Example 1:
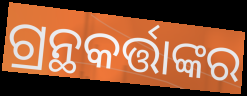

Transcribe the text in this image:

ଗ୍ରନ୍ଥକର୍ତ୍ତାଙ୍କର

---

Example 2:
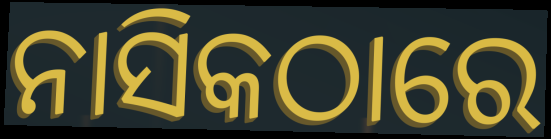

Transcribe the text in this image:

ନାସିକଠାରେ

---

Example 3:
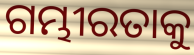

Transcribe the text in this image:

ଗମ୍ଭୀରତାକୁ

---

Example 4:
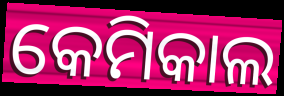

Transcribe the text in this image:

କେମିକାଲ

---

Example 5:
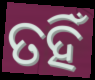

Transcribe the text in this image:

ତହିଁ